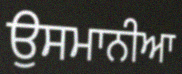
ਉਸਮਾਨੀਆ